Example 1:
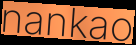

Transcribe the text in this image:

nankao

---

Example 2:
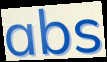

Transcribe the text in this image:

abs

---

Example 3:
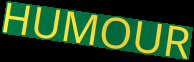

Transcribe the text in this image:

HUMOUR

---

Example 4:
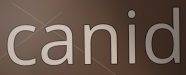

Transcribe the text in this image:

canid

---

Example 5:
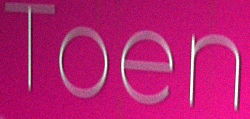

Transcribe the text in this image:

Toen